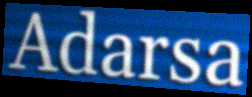
Adarsa